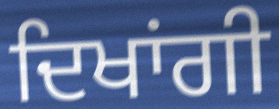
ਦਿਖਾਂਗੀ